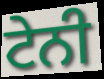
ਟੇਨੀ